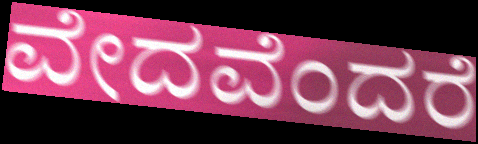
ವೇದವೆಂದರೆ